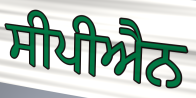
ਸੀਪੀਐਨ